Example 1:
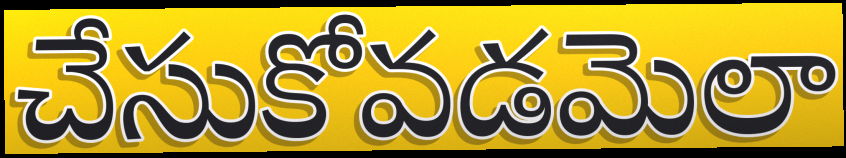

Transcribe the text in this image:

చేసుకోవడమెలా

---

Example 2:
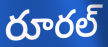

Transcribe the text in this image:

రూరల్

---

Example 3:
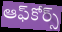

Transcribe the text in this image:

ఆఫ్‌కోర్స్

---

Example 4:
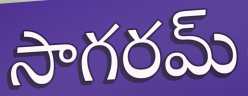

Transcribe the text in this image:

సాగరమ్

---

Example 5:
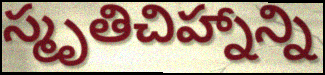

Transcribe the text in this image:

స్మృతిచిహ్నాన్ని